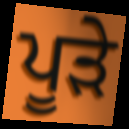
ਪੂੜੇ